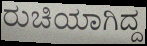
ರುಚಿಯಾಗಿದ್ದ